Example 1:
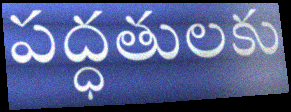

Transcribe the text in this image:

పద్ధతులకు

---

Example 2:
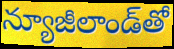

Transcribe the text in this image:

న్యూజీలాండ్‌తో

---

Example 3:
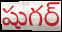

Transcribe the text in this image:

షుగర్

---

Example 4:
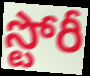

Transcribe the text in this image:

స్టోరీ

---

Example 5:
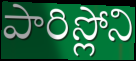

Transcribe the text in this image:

పారిస్లోని